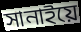
সানাইয়ে